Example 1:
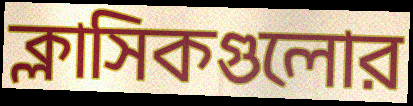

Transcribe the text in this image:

ক্লাসিকগুলোর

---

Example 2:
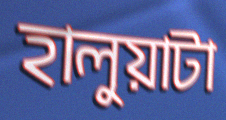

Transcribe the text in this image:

হালুয়াটা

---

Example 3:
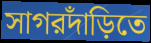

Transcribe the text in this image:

সাগরদাঁড়িতে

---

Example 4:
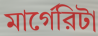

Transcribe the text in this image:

মার্গেরিটা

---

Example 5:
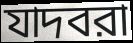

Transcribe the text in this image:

যাদবরা